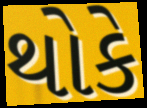
થોકે